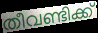
തീവണ്ടിക്ക്